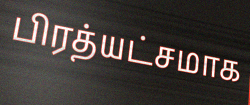
பிரத்யட்சமாக